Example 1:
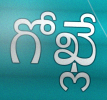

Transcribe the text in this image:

గోఖ్లే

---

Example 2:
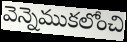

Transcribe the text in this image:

వెన్నెముకలోంచి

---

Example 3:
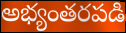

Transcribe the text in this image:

అభ్యంతరపడి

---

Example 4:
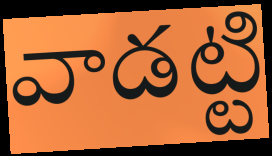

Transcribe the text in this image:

వాడట్టి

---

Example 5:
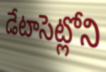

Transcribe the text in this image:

డేటాసెట్లోని